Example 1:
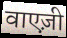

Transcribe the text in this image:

वाएज़ी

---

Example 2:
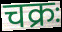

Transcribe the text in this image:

चक्रः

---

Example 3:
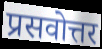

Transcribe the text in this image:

प्रसवोत्तर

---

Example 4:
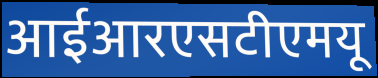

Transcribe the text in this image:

आईआरएसटीएमयू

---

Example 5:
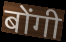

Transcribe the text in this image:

बोंगी